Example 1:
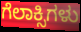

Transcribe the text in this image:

ಗೆಲಾಕ್ಸಿಗಳು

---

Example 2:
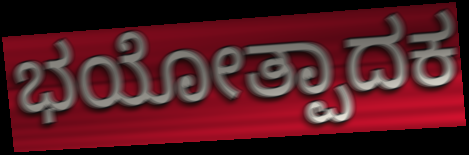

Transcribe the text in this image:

ಭಯೋತ್ಪಾದಕ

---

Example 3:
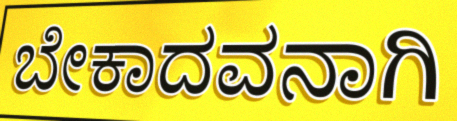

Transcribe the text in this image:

ಬೇಕಾದವನಾಗಿ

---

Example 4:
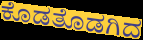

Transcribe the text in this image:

ಕೊಡತೊಡಗಿದ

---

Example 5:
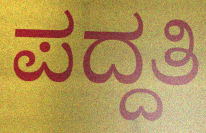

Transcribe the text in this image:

ಪದ್ದತಿ